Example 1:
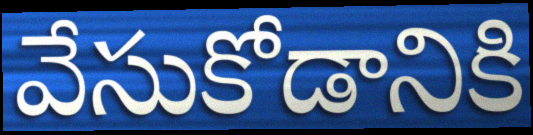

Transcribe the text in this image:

వేసుకోడానికి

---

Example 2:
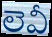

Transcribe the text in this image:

లెవీ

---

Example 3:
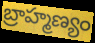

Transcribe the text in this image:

బ్రాహ్మణ్యం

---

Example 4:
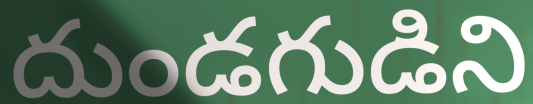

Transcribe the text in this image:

దుండగుడిని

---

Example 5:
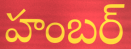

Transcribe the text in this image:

హంబర్